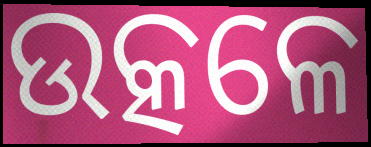
ଉତ୍କଳେ